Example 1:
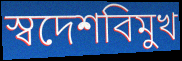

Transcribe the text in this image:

স্বদেশবিমুখ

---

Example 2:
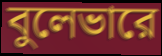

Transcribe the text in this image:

বুলেভারে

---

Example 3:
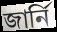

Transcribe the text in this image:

জার্নি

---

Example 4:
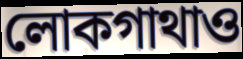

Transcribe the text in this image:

লোকগাথাও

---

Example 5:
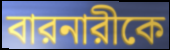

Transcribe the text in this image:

বারনারীকে